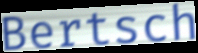
Bertsch